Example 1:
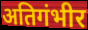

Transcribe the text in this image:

अतिगंभीर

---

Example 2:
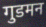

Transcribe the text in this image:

गुडमन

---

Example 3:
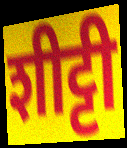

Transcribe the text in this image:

शीट्टी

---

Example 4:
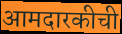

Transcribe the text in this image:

आमदारकीची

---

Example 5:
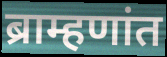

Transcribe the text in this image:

ब्राम्हणांत